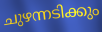
ചുഴന്നടിക്കും